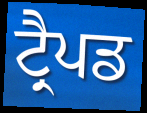
ਟ੍ਰੈਪਡ